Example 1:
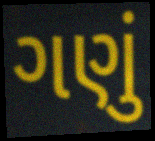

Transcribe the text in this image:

ગણું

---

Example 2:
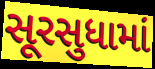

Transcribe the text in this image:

સૂરસુધામાં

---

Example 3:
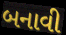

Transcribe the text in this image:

બનાવી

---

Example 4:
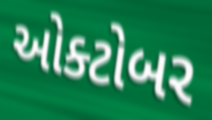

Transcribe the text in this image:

ઓક્ટોબર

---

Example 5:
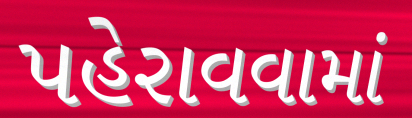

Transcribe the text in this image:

પહેરાવવામાં